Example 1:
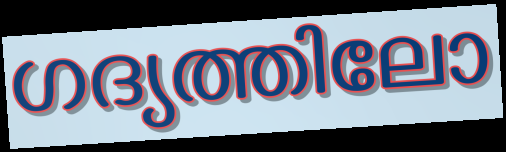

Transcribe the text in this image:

ഗദ്യത്തിലോ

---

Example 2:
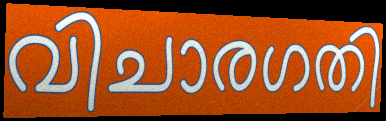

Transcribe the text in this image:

വിചാരഗതി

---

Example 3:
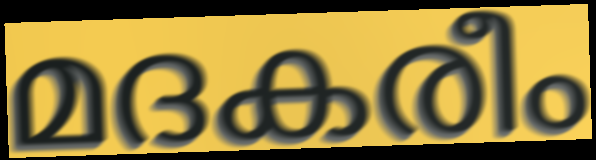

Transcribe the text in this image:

മദകരീം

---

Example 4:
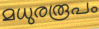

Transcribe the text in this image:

മധുരരൂപം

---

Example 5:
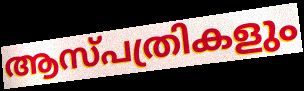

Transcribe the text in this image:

ആസ്പത്രികളും